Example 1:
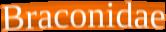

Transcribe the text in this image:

Braconidae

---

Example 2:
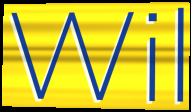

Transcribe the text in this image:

Wil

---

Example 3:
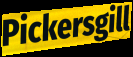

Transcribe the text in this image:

Pickersgill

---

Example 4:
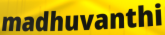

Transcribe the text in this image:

madhuvanthi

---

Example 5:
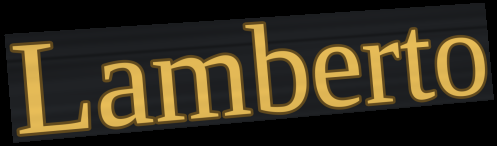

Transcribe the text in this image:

Lamberto